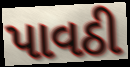
પાવઠી